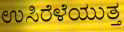
ಉಸಿರೆಳೆಯುತ್ತ